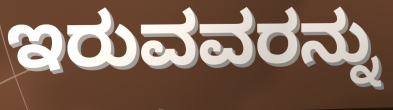
ಇರುವವರನ್ನು